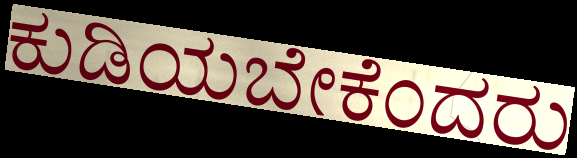
ಕುಡಿಯಬೇಕೆಂದರು